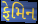
ફેમિન